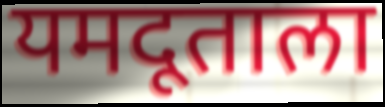
यमदूताला